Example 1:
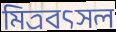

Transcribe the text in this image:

মিত্রবৎসল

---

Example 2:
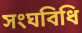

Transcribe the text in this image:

সংঘবিধি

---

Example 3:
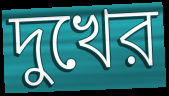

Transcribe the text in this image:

দুখের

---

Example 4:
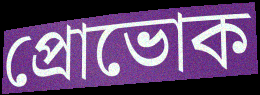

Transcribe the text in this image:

প্রোভোক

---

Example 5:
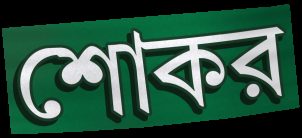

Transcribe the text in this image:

শোকর